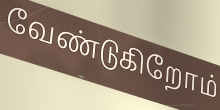
வேண்டுகிறோம்